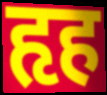
हृह